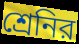
শ্রেনির